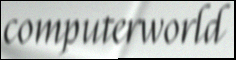
computerworld